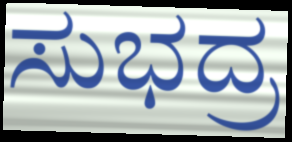
ಸುಭದ್ರ